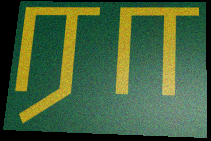
ரா